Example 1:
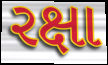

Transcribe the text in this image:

રક્ષા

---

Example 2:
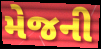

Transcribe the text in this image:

મેજની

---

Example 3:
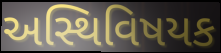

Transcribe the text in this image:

અસ્થિવિષયક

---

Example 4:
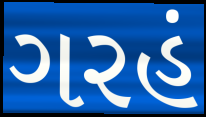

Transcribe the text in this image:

ગરહં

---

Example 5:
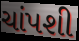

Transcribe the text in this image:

ચાંપશી